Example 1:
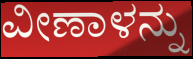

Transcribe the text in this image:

ವೀಣಾಳನ್ನು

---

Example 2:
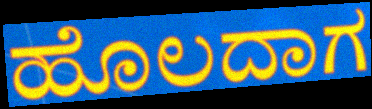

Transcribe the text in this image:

ಹೊಲದಾಗ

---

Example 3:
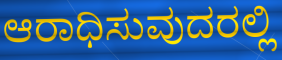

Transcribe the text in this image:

ಆರಾಧಿಸುವುದರಲ್ಲಿ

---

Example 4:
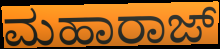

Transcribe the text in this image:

ಮಹಾರಾಜ್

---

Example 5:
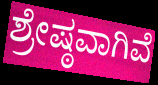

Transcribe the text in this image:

ಶ್ರೇಷ್ಠವಾಗಿವೆ